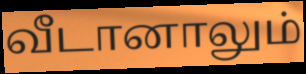
வீடானாலும்